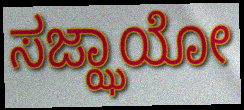
ಸಜ್ಝಾಯೋ